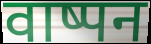
वाष्पन